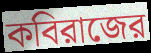
কবিরাজের